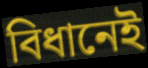
বিধানেই